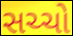
સચ્ચો